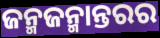
ଜନ୍ମଜନ୍ମାନ୍ତରର